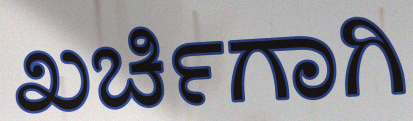
ಖರ್ಚಿಗಾಗಿ